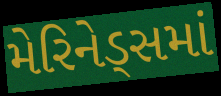
મેરિનેડ્સમાં